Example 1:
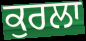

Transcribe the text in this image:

ਕੁਰਲਾ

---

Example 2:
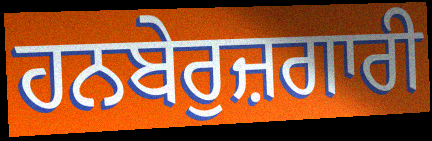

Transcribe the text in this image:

ਹਨਬੇਰੁਜ਼ਗਾਰੀ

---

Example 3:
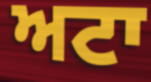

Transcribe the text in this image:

ਅਟਾ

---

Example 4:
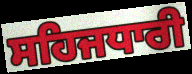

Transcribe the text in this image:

ਸਹਿਜਧਾਰੀ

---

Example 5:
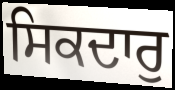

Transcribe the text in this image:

ਸਿਕਦਾਰੁ